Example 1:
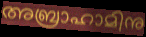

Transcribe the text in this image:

അബ്രാഹാമിനു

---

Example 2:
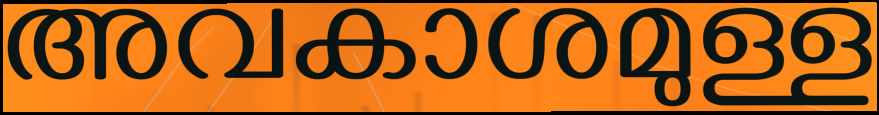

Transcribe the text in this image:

അവകാശമുള്ള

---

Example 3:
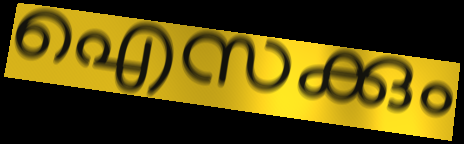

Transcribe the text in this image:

ഐസക്കും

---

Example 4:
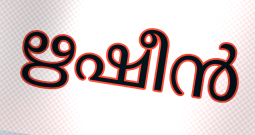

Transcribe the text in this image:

ഋഷീൻ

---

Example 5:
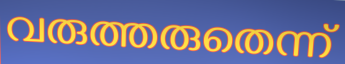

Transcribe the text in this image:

വരുത്തരുതെന്ന്